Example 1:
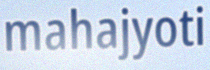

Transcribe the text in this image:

mahajyoti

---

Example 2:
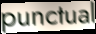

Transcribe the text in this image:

punctual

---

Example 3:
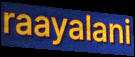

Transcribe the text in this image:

raayalani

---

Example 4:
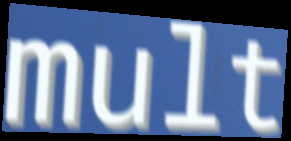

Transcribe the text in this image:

mult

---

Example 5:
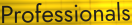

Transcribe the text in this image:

Professionals